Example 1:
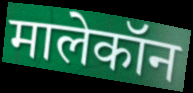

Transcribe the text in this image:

मालेकॉन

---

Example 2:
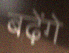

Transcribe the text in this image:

बढ़ेंगे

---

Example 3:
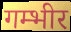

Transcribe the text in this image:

गम्भीर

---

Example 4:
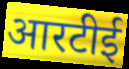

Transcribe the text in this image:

आरटीई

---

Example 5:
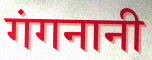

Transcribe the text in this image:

गंगनानी